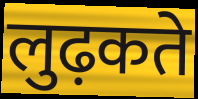
लुढ़कते